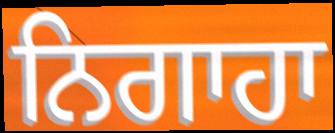
ਨਿਗਾਹਾ